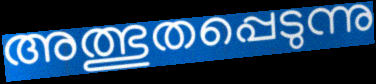
അത്ഭുതപ്പെടുന്നു